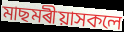
মাছমৰীয়াসকলে